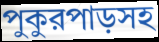
পুকুরপাড়সহ